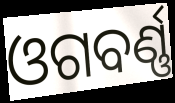
ଓଗବର୍ଣ୍ଣ